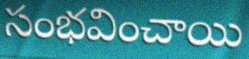
సంభవించాయి